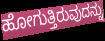
ಹೋಗುತ್ತಿರುವುದನ್ನು